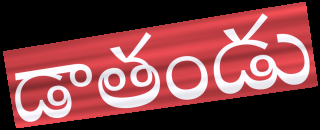
డాతండు